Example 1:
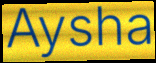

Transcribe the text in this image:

Aysha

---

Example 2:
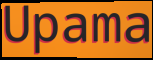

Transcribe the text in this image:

Upama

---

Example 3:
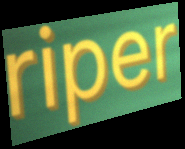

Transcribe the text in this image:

riper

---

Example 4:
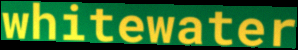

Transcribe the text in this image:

whitewater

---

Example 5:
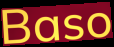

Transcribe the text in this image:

Baso